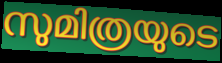
സുമിത്രയുടെ